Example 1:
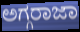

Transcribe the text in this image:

ಅಗ್ಗರಾಜಾ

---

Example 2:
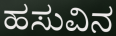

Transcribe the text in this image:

ಹಸುವಿನ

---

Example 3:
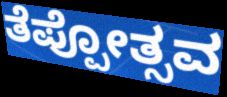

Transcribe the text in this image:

ತೆಪ್ಪೋತ್ಸವ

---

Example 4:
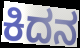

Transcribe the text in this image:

ಕಿದನ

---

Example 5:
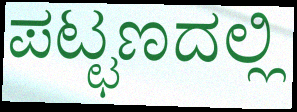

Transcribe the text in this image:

ಪಟ್ಟಣದಲ್ಲಿ